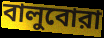
বালুবোরা